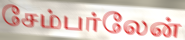
சேம்பர்லேன்